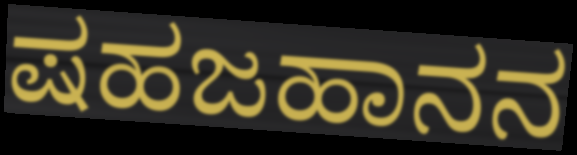
ಷಹಜಹಾನನ